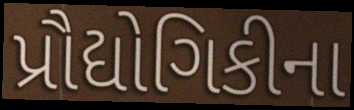
પ્રૌદ્યોગિકીના